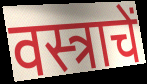
वस्त्राचें